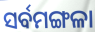
ସର୍ବମଙ୍ଗଳା